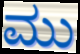
ಮು